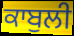
ਕਾਬੁਲੀ